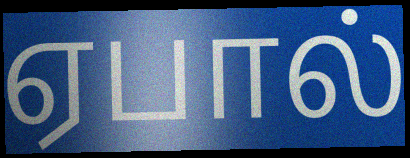
ஏபால்